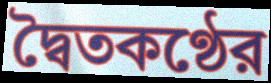
দ্বৈতকণ্ঠের